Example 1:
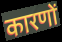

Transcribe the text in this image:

कारणों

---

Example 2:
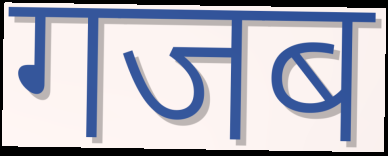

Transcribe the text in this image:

गजब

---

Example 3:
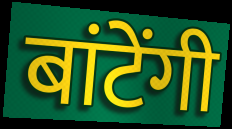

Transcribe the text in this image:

बांटेंगी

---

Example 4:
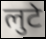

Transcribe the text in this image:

लुटे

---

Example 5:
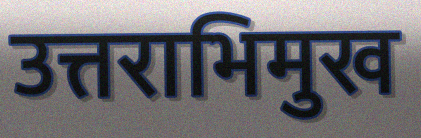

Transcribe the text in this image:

उत्तराभिमुख